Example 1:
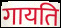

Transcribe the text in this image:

गायति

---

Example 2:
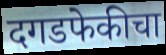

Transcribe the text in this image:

दगडफेकीचा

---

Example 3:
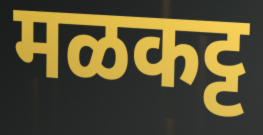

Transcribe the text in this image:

मळकट्ट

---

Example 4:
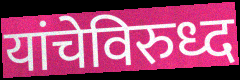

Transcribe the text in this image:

यांचेविरुध्द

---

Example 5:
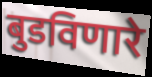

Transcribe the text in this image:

बुडविणारे